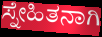
ಸ್ನೇಹಿತನಾಗಿ